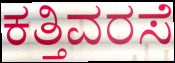
ಕತ್ತಿವರಸೆ